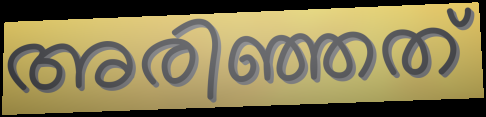
അരിഞ്ഞത്